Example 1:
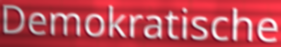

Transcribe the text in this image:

Demokratische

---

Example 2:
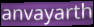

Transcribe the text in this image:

anvayarth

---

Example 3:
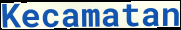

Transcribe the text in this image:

Kecamatan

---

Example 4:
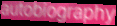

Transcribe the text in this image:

autobiography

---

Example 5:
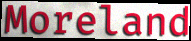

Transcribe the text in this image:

Moreland